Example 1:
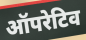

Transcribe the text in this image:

ऑपरेटिव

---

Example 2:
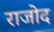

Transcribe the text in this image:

राजोद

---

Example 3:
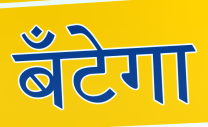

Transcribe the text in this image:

बँटेगा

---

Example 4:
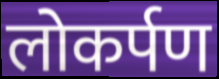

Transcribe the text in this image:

लोकर्पण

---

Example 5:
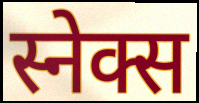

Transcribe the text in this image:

स्नेक्स